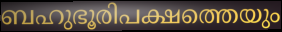
ബഹുഭൂരിപക്ഷത്തെയും